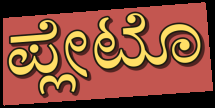
ಪ್ಲೇಟೊ